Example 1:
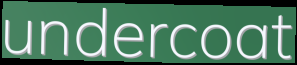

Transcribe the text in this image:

undercoat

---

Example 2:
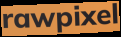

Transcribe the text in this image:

rawpixel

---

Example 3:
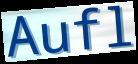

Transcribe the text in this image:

Aufl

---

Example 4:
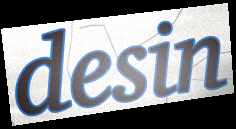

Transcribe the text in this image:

desin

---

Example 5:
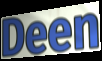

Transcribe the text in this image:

Deen